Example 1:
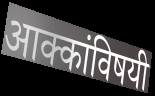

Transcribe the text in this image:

आक्कांविषयी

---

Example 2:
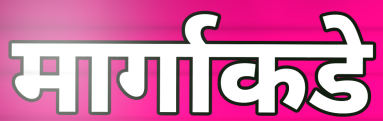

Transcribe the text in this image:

मार्गाकडे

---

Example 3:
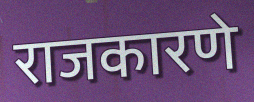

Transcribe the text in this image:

राजकारणे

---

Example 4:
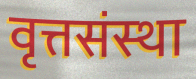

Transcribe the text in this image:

वृत्तसंस्था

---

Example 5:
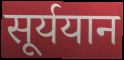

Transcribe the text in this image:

सूर्ययान